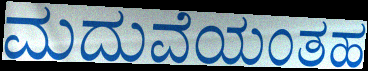
ಮದುವೆಯಂತಹ